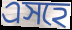
এসহে